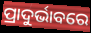
ପ୍ରାଦୁର୍ଭାବରେ